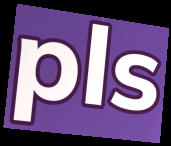
pls